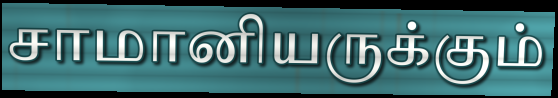
சாமானியருக்கும்